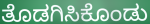
ತೊಡಗಿಸಿಕೊಂಡು